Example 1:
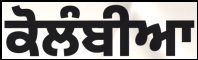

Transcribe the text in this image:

ਕੋਲੰਬੀਆ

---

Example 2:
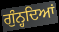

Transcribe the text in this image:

ਗੁੰਨ੍ਹਦਿਆਂ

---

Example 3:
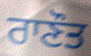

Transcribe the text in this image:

ਰਾਣੌਤ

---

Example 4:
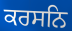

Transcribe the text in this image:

ਕਰਸਨਿ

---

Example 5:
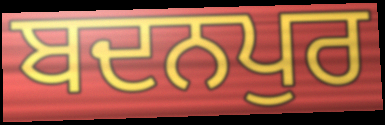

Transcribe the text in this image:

ਬਦਨਪੁਰ